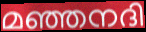
മഞ്ഞനദി